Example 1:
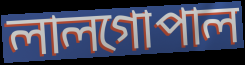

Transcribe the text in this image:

লালগোপাল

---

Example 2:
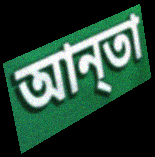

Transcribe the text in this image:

আন্‌তা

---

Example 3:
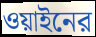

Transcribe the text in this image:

ওয়াইনের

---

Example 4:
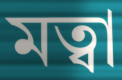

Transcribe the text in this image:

মত্বা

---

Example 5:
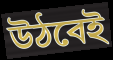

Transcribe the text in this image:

উঠবেই